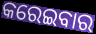
କରେଇବାର